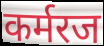
कर्मरज